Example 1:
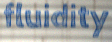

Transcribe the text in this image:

fluidity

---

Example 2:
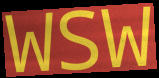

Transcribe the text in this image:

WSW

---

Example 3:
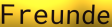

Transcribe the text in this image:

Freunde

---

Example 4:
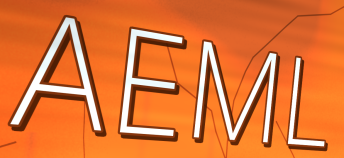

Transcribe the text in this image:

AEML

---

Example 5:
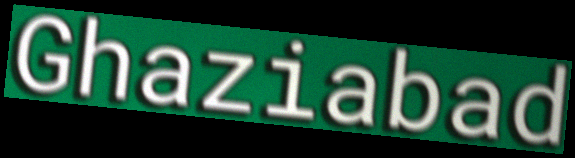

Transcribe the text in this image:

Ghaziabad